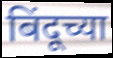
बिंदूच्या